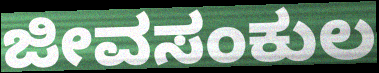
ಜೀವಸಂಕುಲ